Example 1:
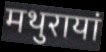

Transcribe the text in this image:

मथुरायां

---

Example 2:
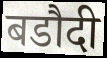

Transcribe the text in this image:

बडौदी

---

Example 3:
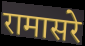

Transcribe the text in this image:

रामासरे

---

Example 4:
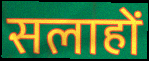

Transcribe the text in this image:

सलाहों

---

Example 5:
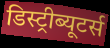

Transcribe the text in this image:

डिस्ट्रीब्यूटर्स